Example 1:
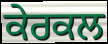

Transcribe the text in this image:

ਕੇਰਕਲ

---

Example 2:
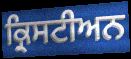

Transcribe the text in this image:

ਕ੍ਰਿਸਟੀਅਨ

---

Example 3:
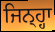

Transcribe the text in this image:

ਜਿਨ੍ਹ੍ਹਾ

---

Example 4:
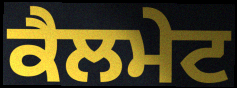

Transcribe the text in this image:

ਕੈਲਮੇਟ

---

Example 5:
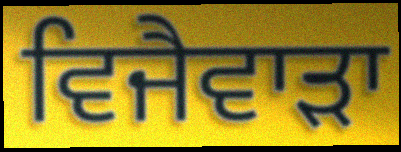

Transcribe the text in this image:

ਵਿਜੈਵਾੜਾ